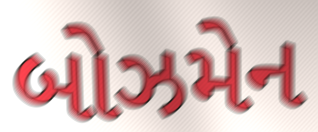
બોઝમેન